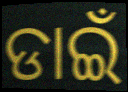
ଡାଇଁ